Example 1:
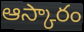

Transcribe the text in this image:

ఆస్కారం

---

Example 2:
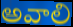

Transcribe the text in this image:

అవాలి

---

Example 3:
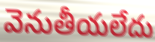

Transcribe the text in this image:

వెనుతీయలేదు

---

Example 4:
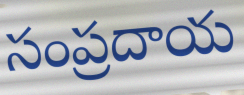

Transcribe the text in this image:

సంప్రదాయ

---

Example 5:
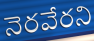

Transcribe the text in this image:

నెరవేరని